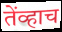
तेंव्हाच